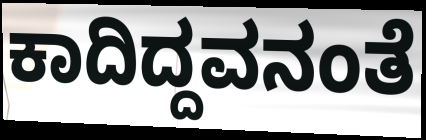
ಕಾದಿದ್ದವನಂತೆ